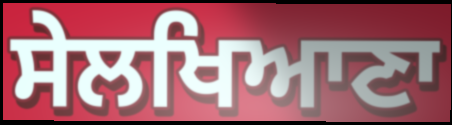
ਸੇਲਖਿਆਣਾ